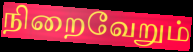
நிறைவேறும்